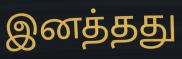
இனத்தது